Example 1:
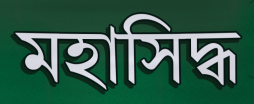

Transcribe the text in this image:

মহাসিদ্ধ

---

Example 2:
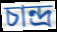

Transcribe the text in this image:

চান্দ্ৰ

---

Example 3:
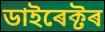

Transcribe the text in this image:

ডাইৰেক্টৰ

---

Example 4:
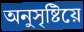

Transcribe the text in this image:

অনুসৃষ্টিয়ে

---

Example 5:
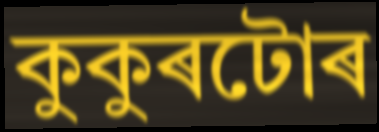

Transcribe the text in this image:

কুকুৰটোৰ